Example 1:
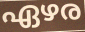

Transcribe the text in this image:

ഏഴര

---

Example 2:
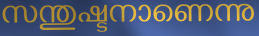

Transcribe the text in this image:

സന്തുഷ്ടനാണെന്നു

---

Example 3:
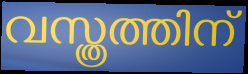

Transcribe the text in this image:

വസ്ത്രത്തിന്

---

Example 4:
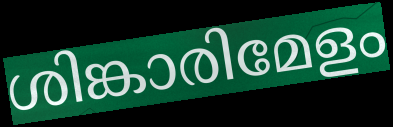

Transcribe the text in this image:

ശിങ്കാരിമേളം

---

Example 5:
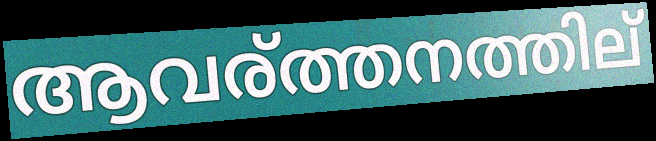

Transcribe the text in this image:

ആവര്ത്തനത്തില്